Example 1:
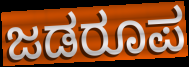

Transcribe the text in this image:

ಜಡರೂಪ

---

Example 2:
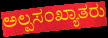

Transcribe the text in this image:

ಅಲ್ಪಸಂಖ್ಯಾತರು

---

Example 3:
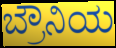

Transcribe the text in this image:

ಬ್ರೌನಿಯ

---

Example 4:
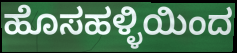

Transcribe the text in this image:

ಹೊಸಹಳ್ಳಿಯಿಂದ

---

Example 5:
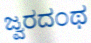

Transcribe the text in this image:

ಜ್ವರದಂಥ